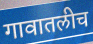
गावातलीच